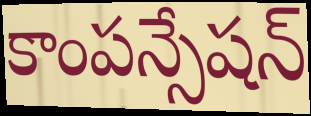
కాంపన్సేషన్